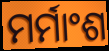
ମର୍ମାଂଶ